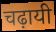
चढ़ायी